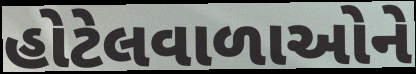
હોટેલવાળાઓને